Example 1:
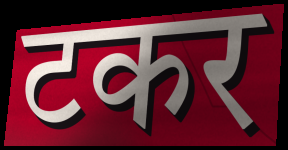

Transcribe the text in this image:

टकर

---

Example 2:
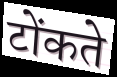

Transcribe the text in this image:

टोंकते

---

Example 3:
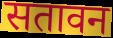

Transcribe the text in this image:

सतावन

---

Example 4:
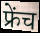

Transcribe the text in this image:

फ्रेंच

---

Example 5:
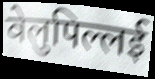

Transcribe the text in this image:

वेलुपिल्लई